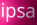
ipsa